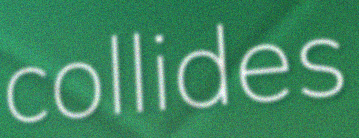
collides